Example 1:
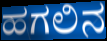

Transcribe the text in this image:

ಹಗಲಿನ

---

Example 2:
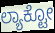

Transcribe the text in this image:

ಲ್ಯಾಕ್ಟೋ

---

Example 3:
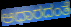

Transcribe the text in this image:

ಆಧಾರದಂತೆ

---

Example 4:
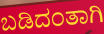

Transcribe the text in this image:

ಬಡಿದಂತಾಗಿ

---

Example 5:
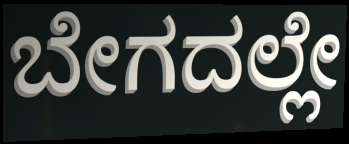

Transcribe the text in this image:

ಬೇಗದಲ್ಲೇ